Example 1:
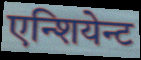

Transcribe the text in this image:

एन्शियेन्ट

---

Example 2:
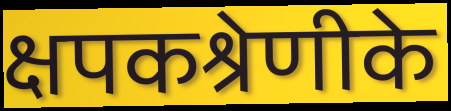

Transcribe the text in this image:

क्षपकश्रेणीके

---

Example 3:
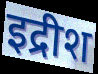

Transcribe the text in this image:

इद्रीश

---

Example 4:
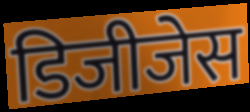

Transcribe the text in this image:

डिजीजेस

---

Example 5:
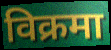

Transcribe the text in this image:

विक्रमा